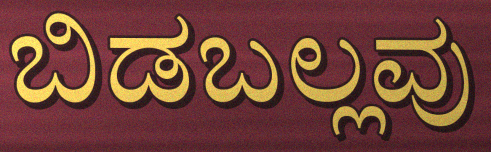
ಬಿಡಬಲ್ಲವು